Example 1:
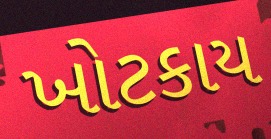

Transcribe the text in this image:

ખોટકાય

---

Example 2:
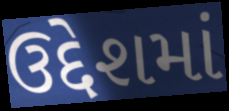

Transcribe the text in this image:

ઉદ્દેશમાં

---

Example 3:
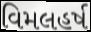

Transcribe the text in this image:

વિમલહર્ષ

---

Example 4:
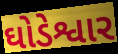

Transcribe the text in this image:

ઘોડેશ્વાર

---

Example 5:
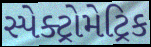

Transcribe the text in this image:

સ્પેક્ટ્રોમેટ્રિક